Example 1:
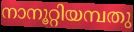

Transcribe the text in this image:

നാനൂറ്റിയമ്പതു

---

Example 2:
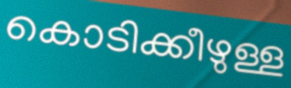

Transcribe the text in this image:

കൊടിക്കീഴുള്ള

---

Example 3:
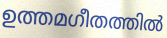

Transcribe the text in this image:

ഉത്തമഗീതത്തിൽ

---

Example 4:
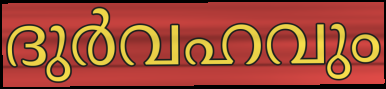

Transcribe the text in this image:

ദുർവഹവും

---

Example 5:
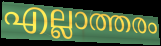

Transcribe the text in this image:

എല്ലാത്തരം